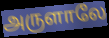
அருளாலே